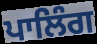
ਪਾਲਿੰਗ